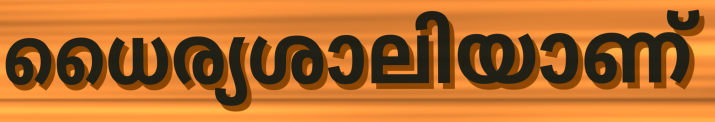
ധൈര്യശാലിയാണ്